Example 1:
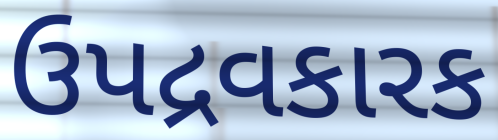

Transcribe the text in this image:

ઉપદ્રવકારક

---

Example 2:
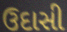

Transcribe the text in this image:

ઉદાસી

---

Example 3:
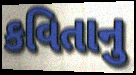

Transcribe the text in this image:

કવિતાનુ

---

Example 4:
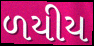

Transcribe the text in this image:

ળયીય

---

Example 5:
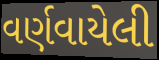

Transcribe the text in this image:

વર્ણવાયેલી